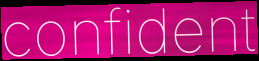
confident